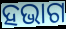
ହଭାଗ